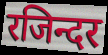
रजिन्दर